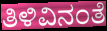
ತಿಳಿವಿನಂತೆ